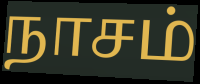
நாசம்